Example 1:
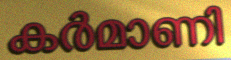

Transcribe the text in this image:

കർമാണി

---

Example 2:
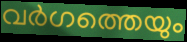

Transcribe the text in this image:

വർഗത്തെയും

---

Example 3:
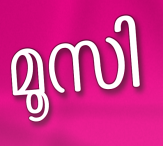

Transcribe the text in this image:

മൂസി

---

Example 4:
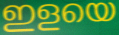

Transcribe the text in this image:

ഇളയെ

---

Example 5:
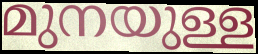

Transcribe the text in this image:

മുനയുള്ള